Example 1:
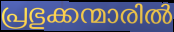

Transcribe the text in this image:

പ്രഭുക്കന്മാരിൽ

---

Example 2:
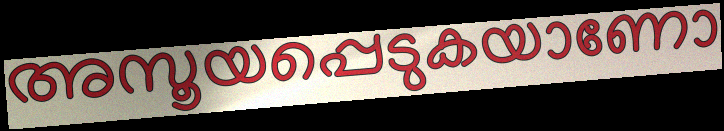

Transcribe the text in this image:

അസൂയപ്പെടുകയാണോ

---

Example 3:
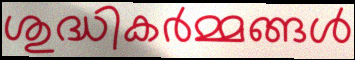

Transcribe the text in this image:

ശുദ്ധികർമ്മങ്ങൾ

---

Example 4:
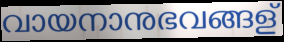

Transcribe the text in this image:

വായനാനുഭവങ്ങള്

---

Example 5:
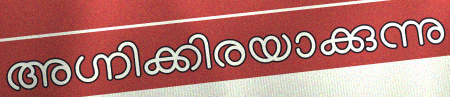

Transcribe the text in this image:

അഗ്നിക്കിരയാക്കുന്നു